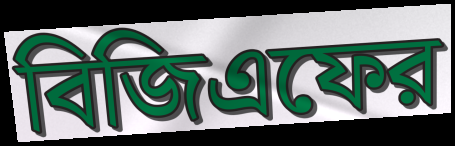
বিজিএফের